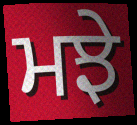
ਮਝੇ